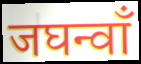
जघन्वाँ